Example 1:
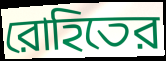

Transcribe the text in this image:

রোহিতের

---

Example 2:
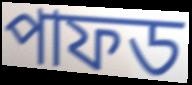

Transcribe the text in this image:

পাফড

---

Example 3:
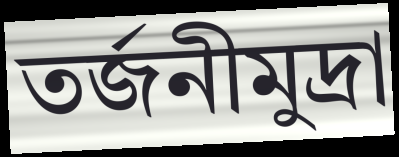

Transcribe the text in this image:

তর্জনীমুদ্রা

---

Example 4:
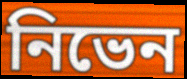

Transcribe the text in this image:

নিভেন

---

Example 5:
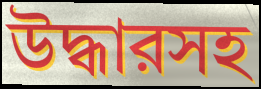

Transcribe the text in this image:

উদ্ধারসহ